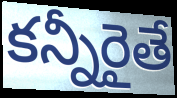
కన్నీరైతే